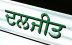
ਦਲਜੀਤ